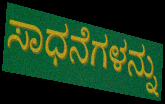
ಸಾಧನೆಗಳನ್ನು